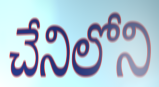
చేనిలోని